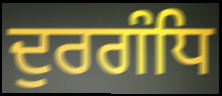
ਦੁਰਗੰਧਿ